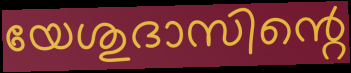
യേശുദാസിന്റെ